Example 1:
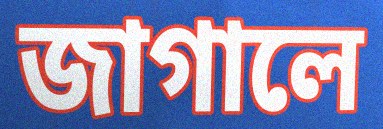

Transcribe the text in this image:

জাগালে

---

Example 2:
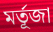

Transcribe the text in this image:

মর্তূজা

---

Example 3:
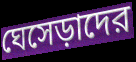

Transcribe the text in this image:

ঘেসেড়াদের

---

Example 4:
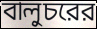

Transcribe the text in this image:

বালুচরের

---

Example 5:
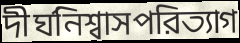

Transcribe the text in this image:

দীর্ঘনিশ্বাসপরিত্যাগ